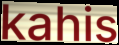
kahis